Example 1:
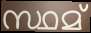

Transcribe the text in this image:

സ്ഥമ്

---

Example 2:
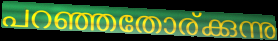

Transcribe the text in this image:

പറഞ്ഞതോര്ക്കുന്നു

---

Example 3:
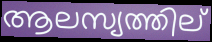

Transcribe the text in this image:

ആലസ്യത്തില്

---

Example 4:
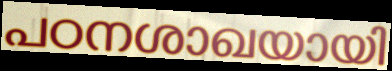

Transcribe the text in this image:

പഠനശാഖയായി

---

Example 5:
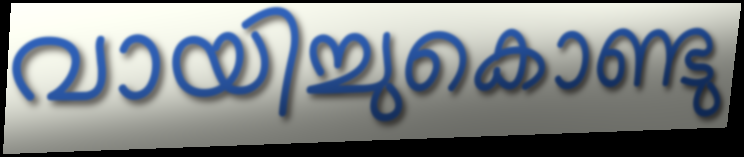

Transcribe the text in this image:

വായിച്ചുകൊണ്ടു